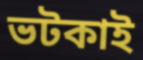
ভটকাই